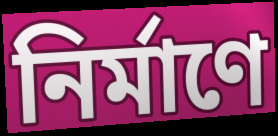
নিৰ্মাণে